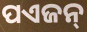
ପଏଜନ୍